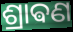
ଶ୍ରାଵଣ